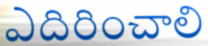
ఎదిరించాలి